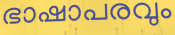
ഭാഷാപരവും